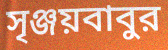
সৃঞ্জয়বাবুর